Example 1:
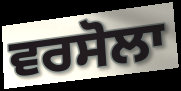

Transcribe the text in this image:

ਵਰਸੋਲਾ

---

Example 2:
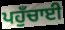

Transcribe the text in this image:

ਪਹੁਁਚਾਈ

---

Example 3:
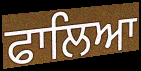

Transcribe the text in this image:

ਫਾਲਿਆ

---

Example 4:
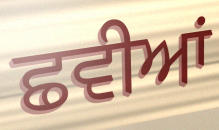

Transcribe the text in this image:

ਛਵੀਆਂ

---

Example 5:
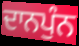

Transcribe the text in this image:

ਦਾਨਪੁੰਨ